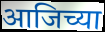
आजिच्या